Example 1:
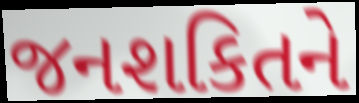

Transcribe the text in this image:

જનશકિતને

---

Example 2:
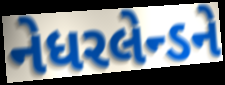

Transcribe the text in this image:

નેધરલેન્ડને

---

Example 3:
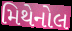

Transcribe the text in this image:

મિથેનોલ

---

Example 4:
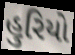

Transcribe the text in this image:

હુરિયો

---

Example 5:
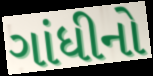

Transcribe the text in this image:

ગાંધીનો